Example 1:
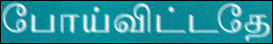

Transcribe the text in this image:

போய்விட்டதே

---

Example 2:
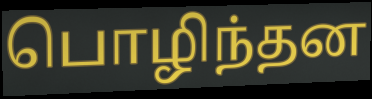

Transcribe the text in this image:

பொழிந்தன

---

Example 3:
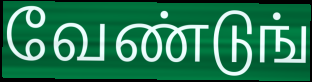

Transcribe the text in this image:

வேண்டுங்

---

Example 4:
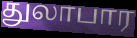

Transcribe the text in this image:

துலாபார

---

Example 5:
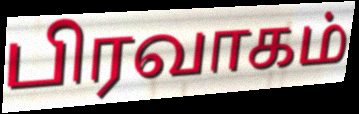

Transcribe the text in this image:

பிரவாகம்